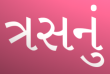
ત્રસનું